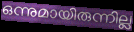
ഒന്നുമായിരുന്നില്ല